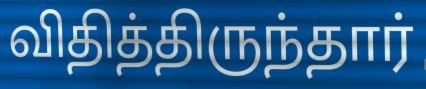
விதித்திருந்தார்